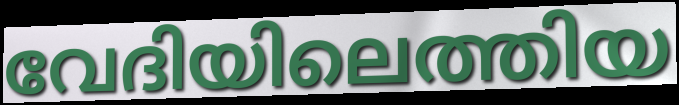
വേദിയിലെത്തിയ